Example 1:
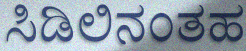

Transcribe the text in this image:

ಸಿಡಿಲಿನಂತಹ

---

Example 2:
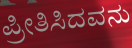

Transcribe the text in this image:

ಪ್ರೀತಿಸಿದವನು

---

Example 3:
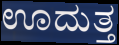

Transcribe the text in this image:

ಊದುತ್ತ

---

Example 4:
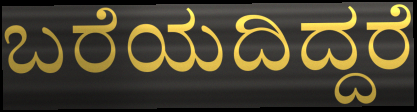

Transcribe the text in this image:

ಬರೆಯದಿದ್ದರೆ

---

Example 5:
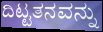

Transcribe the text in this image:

ದಿಟ್ಟತನವನ್ನು